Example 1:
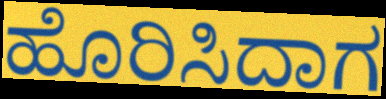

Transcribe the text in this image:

ಹೊರಿಸಿದಾಗ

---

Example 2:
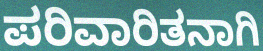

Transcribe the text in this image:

ಪರಿವಾರಿತನಾಗಿ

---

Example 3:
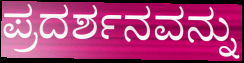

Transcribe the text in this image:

ಪ್ರದರ್ಶನವನ್ನು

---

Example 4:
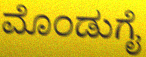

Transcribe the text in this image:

ಮೊಂಡುಗೈ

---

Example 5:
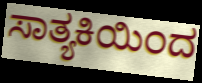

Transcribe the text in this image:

ಸಾತ್ಯಕಿಯಿಂದ